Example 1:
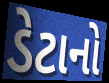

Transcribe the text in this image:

ડેટાનો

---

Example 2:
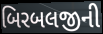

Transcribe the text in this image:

બિરબલજીની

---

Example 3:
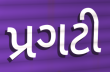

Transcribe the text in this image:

પ્રગટી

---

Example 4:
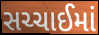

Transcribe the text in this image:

સચ્ચાઈમાં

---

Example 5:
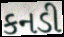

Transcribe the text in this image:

કનડી